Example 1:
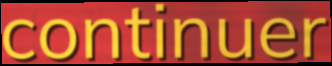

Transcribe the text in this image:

continuer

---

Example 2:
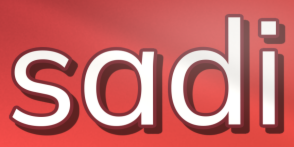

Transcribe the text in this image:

sadi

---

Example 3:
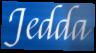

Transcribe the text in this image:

Jedda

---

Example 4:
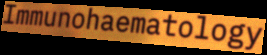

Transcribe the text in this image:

Immunohaematology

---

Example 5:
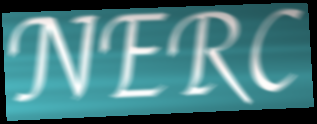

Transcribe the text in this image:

NERC